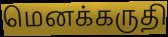
மெனக்கருதி